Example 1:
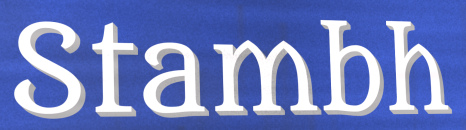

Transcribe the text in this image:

Stambh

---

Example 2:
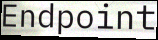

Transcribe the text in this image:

Endpoint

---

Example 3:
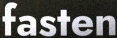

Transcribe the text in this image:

fasten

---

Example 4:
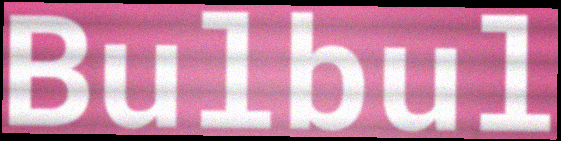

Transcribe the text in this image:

Bulbul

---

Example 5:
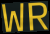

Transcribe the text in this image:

WR